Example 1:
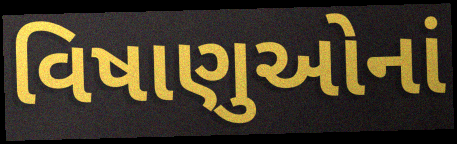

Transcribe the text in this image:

વિષાણુઓનાં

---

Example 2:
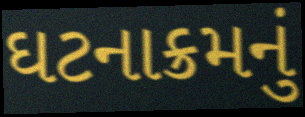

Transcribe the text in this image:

ઘટનાક્રમનું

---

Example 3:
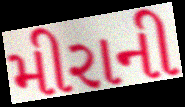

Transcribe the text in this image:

મીરાની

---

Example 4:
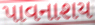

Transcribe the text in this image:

પાવનાશય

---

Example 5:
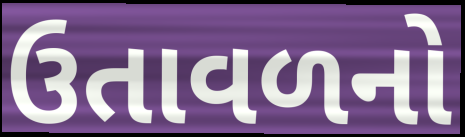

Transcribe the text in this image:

ઉતાવળનો